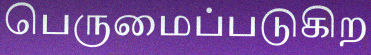
பெருமைப்படுகிற